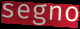
segno